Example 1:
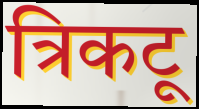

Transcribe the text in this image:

त्रिकटू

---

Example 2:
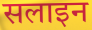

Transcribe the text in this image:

सलाइन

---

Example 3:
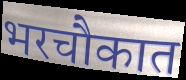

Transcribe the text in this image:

भरचौकात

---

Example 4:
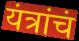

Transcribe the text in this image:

यंत्रांचं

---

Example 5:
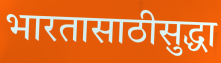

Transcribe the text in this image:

भारतासाठीसुद्धा